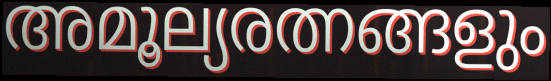
അമൂല്യരത്നങ്ങളും